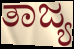
ತಾಜ್ಯ